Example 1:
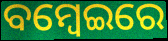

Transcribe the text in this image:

ବମ୍ବେଇରେ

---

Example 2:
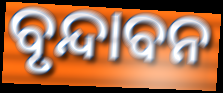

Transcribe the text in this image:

ବୃନ୍ଦାବନ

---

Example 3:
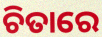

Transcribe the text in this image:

ଚିତାରେ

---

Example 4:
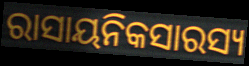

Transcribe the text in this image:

ରାସାୟନିକସାରସ୍ୟ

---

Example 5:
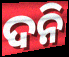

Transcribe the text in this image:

ଦନି